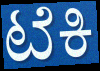
ಟೆಕಿ